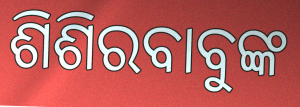
ଶିଶିରବାବୁଙ୍କ